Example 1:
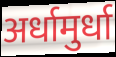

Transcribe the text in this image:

अर्धामुर्धा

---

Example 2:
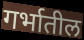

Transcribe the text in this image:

गर्भातील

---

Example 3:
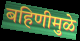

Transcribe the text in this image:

बहिणीमुळे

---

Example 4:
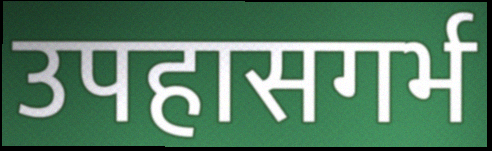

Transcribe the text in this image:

उपहासगर्भ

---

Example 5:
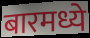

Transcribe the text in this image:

बारमध्ये